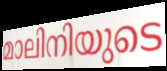
മാലിനിയുടെ